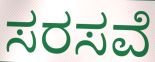
ಸರಸವೆ